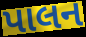
પાલન